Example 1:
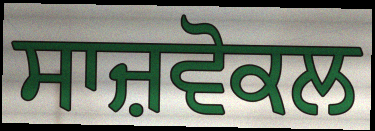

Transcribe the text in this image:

ਸਾਜ਼ਵੋਕਲ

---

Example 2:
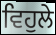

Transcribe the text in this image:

ਵਿਹੁਲੇ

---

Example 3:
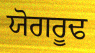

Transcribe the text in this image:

ਯੋਗਰੂਢ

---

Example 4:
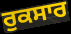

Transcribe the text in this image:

ਰੁਕਸਾਰ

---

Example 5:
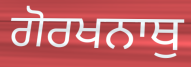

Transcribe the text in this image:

ਗੋਰਖਨਾਥੁ